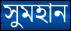
সুমহান